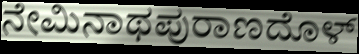
ನೇಮಿನಾಥಪುರಾಣದೊಳ್